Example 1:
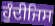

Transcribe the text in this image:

ਹੁੰਦੀਜਿਸ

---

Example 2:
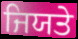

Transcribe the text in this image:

ਜਿਯਤੇ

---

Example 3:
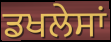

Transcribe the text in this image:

ਡਖਲੇਸਾਂ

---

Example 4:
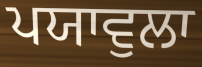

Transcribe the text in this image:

ਪਯਾਵੁਲਾ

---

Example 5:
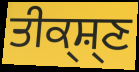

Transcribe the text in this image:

ਤੀਕ੍ਸ਼੍ਣ